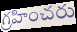
గ్రహించరు